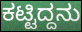
ಕಟ್ಟಿದ್ದನು